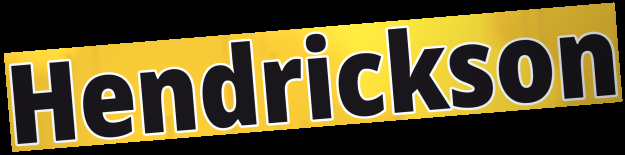
Hendrickson